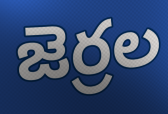
జెర్రల